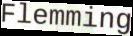
Flemming